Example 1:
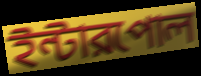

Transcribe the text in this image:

ইন্টারপোল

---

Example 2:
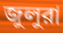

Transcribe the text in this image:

জুলুরা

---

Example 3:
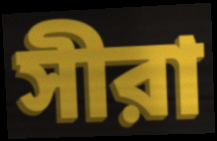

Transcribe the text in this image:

সীরা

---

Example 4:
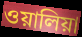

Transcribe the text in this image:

ওয়ালিয়া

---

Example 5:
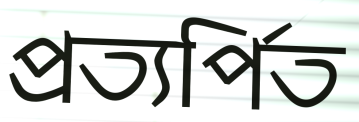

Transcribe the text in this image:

প্রত্যর্পিত